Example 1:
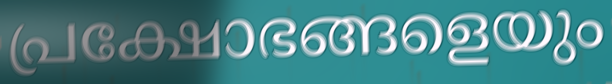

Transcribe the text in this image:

പ്രക്ഷോഭങ്ങളെയും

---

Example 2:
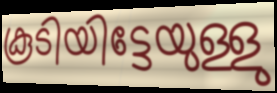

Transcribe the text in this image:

കൂടിയിട്ടേയുള്ളു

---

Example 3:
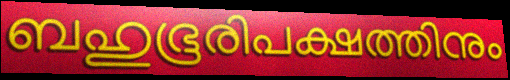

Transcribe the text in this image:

ബഹുഭൂരിപക്ഷത്തിനും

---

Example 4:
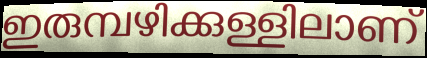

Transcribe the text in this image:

ഇരുമ്പഴിക്കുള്ളിലാണ്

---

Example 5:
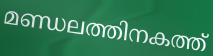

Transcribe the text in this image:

മണ്ഡലത്തിനകത്ത്